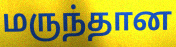
மருந்தான